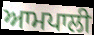
ਆਮਪਾਲੀ